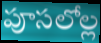
పూసలోల్ల